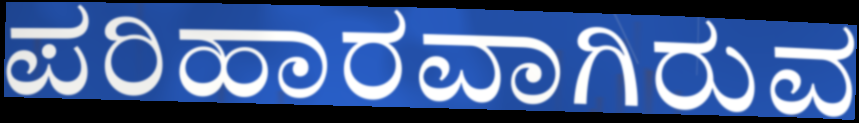
ಪರಿಹಾರವಾಗಿರುವ